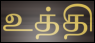
உத்தி